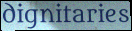
dignitaries